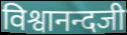
विश्वानन्दजी